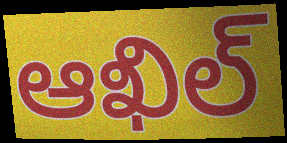
ఆఖిల్